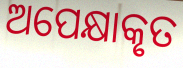
ଅପେକ୍ଷାକୃତ